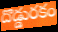
దొడ్డురకం